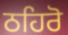
ਠਹਿਰੋ